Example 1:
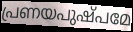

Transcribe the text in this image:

പ്രണയപുഷ്പമേ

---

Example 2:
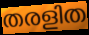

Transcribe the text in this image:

തരളിത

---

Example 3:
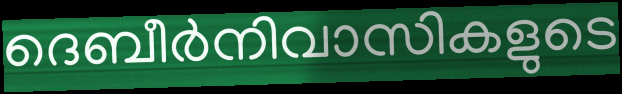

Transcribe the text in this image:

ദെബീർനിവാസികളുടെ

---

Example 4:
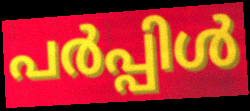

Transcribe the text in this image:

പർപ്പിൾ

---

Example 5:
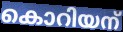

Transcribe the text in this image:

കൊറിയന്